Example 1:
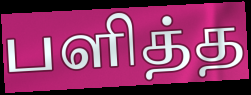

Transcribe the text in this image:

பளித்த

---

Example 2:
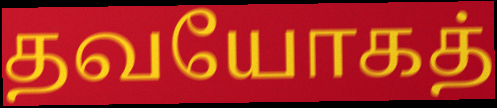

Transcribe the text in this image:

தவயோகத்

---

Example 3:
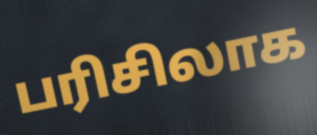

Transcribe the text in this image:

பரிசிலாக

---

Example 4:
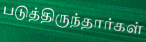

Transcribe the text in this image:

படுத்திருந்தார்கள்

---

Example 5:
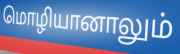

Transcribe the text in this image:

மொழியானாலும்